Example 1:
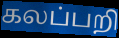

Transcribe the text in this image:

கலப்பறி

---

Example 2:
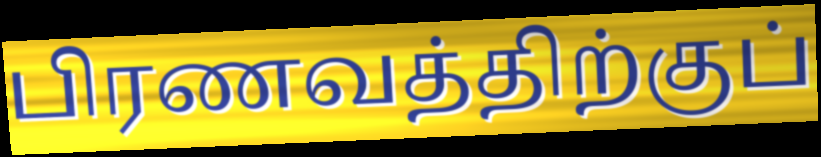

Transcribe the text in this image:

பிரணவத்திற்குப்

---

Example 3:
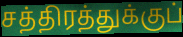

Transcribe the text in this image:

சத்திரத்துக்குப்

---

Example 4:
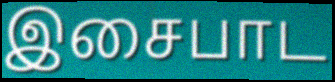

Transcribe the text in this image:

இசைபாட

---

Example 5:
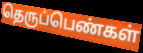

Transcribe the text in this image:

தெருப்பெண்கள்